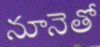
నూనెతో